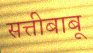
सत्तीबाबू